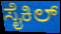
ಸೈಕಿಲ್